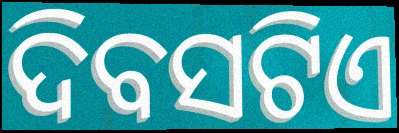
ଦିବସଟିଏ